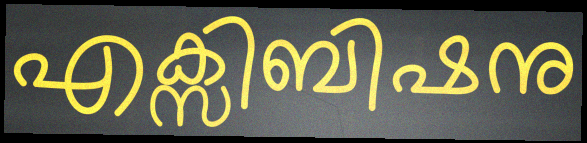
എക്സിബിഷനു